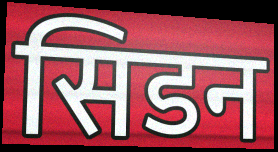
सिडन